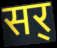
सर्